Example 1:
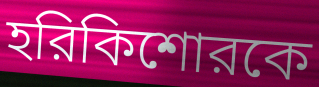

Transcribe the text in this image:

হরিকিশোরকে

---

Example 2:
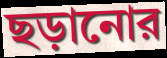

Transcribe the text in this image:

ছড়ানোর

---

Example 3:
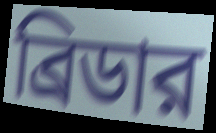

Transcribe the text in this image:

ব্রিডার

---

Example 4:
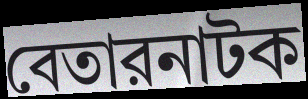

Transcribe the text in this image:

বেতারনাটক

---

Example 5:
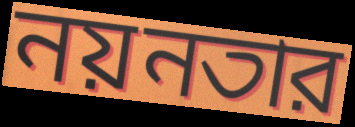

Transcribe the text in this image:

নয়নতার